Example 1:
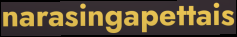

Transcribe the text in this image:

narasingapettais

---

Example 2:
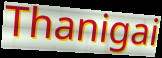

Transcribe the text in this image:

Thanigai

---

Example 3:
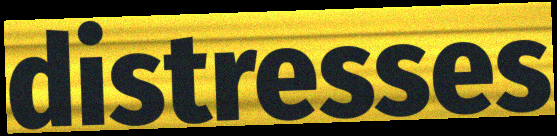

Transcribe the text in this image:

distresses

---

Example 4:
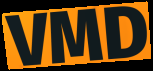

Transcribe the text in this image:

VMD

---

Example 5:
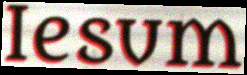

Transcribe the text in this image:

Iesum